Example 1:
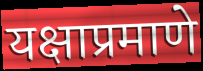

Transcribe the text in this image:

यक्षाप्रमाणे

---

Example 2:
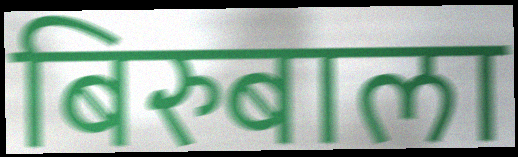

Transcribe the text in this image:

बिरुबाला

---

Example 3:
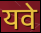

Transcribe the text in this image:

यवे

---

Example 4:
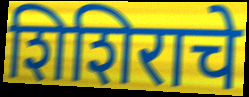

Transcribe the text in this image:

शिशिराचे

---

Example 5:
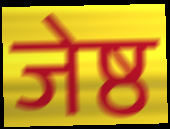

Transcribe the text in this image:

जेष्ठ